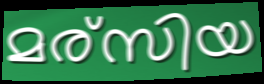
മര്സിയ